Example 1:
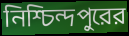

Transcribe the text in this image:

নিশ্চিন্দপুরের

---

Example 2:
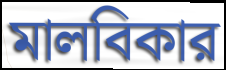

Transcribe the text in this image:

মালবিকার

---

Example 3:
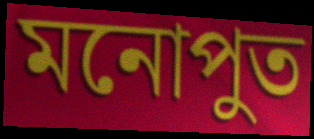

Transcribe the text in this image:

মনোপুত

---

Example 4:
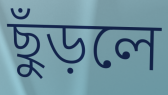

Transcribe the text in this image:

ছুঁড়লে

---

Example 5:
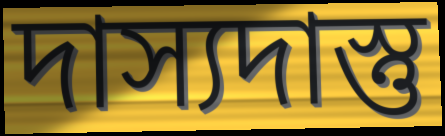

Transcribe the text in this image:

দাস্যদাস্তু